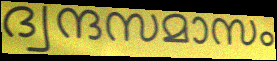
ദ്വന്ദസമാസം